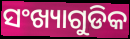
ସଂଖ୍ୟାଗୁଡିକ